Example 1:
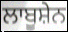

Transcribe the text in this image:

ਲਾਬੂਸ਼ੇਨ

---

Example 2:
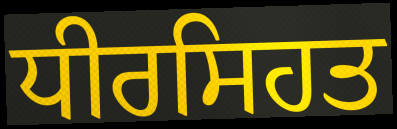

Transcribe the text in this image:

ਧੀਰਸਿਹਤ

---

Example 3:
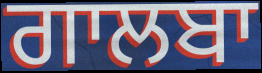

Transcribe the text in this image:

ਗਾਲਬਾ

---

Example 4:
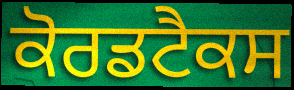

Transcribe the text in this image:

ਕੋਰਡਟੈਕਸ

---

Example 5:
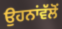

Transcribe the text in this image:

ਉਹਨਾਂਵੱਲੋਂ